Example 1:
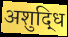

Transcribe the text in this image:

अशुद्धि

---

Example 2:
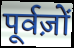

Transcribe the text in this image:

पूर्वज़ों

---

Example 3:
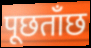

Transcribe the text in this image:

पूछताँछ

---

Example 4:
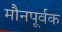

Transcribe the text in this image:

मौनपूर्वक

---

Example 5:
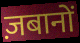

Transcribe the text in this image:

ज़बानों